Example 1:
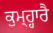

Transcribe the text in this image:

ਕੁਮ੍ਹ੍ਹਾਰੈ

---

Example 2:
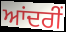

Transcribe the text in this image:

ਆਂਦਰੀਂ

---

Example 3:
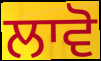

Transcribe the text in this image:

ਲਾਵੋ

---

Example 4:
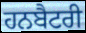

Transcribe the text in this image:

ਹਨਬੈਟਰੀ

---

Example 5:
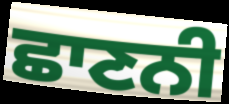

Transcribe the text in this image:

ਛਾਣਨੀ